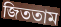
জিততাম